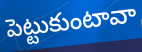
పెట్టుకుంటావా